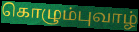
கொழும்புவாழ்